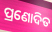
ପ୍ରଣୋଦିତ